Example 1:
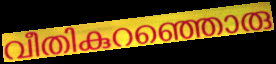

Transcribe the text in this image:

വീതികുറഞ്ഞൊരു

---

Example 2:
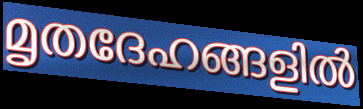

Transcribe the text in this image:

മൃതദേഹങ്ങളിൽ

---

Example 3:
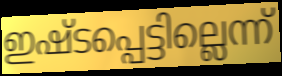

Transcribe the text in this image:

ഇഷ്ടപ്പെട്ടില്ലെന്ന്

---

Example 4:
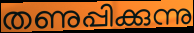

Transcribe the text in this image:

തണുപ്പിക്കുന്നു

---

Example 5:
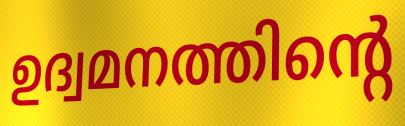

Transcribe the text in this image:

ഉദ്വമനത്തിന്റെ